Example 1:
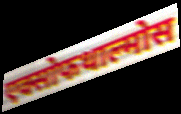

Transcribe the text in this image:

एक्सोफथाल्मोस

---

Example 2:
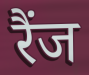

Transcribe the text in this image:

रैंज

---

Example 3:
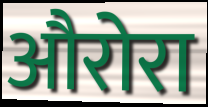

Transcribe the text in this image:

औरोरा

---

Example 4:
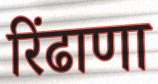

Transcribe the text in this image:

रिंढाणा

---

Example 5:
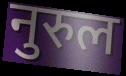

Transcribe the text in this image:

नुरुल